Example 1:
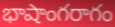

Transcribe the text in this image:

భాషాంగరాగం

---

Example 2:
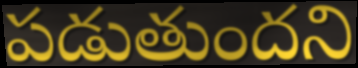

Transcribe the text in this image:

పడుతుందని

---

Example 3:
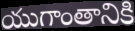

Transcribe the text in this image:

యుగాంతానికి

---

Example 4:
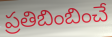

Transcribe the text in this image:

ప్రతిబింబించే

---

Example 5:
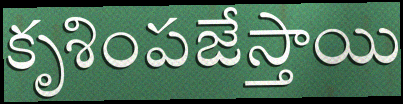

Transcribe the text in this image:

కృశింపజేస్తాయి